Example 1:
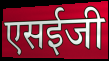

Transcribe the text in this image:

एसईजी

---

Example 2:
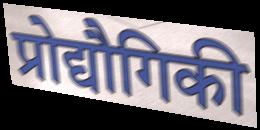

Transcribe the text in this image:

प्रोद्यौगिकी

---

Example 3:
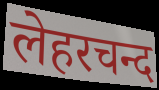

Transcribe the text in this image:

लेहरचन्द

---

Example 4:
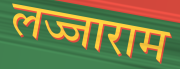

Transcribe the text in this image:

लज्जाराम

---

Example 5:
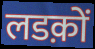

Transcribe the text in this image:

लडक़ों